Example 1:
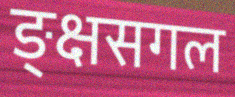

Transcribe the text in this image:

ङ्क्षसगल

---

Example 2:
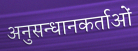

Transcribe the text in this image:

अनुसन्धानकर्ताओं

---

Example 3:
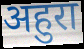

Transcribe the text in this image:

अहुरा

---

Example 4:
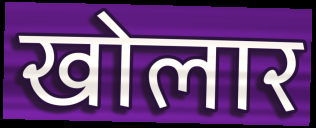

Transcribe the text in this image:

खोलार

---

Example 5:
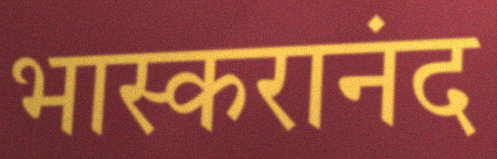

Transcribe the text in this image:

भास्करानंद